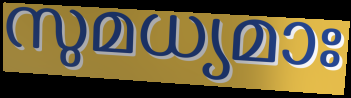
സുമധ്യമാഃ